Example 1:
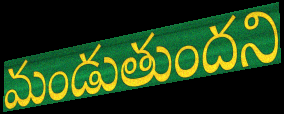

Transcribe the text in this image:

మండుతుందని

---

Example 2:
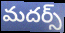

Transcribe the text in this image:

మదర్స్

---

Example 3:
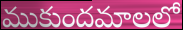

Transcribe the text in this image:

ముకుందమాలలో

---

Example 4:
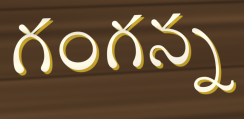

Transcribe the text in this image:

గంగన్న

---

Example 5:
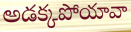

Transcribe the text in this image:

అడక్కపోయావా